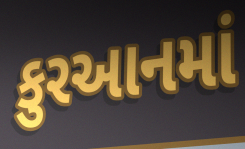
કુરઆનમાં